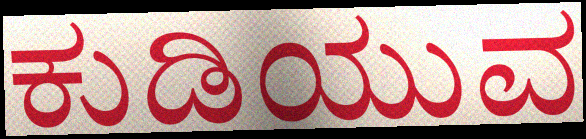
ಕುಡಿಯುವ